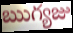
ఋగ్యజు